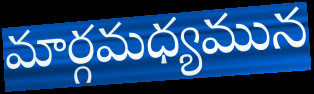
మార్గమధ్యమున